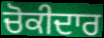
ਚੋਕੀਦਾਰ